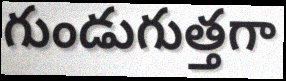
గుండుగుత్తగా